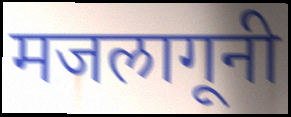
मजलागूनी